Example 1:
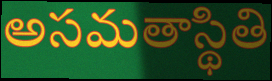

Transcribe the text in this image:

అసమతాస్థితి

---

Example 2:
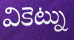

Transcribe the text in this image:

వికెట్ను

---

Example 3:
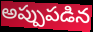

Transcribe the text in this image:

అప్పుపడిన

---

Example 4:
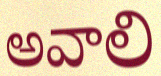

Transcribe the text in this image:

అవాలి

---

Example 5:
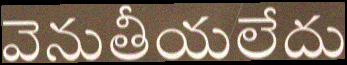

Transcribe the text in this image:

వెనుతీయలేదు